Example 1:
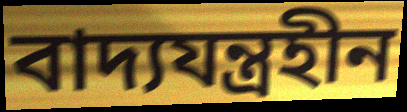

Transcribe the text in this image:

বাদ্যযন্ত্ৰহীন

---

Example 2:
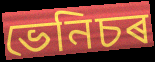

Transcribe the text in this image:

ভেনিচৰ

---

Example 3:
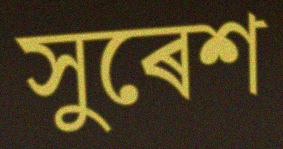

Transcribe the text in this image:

সুৰেশ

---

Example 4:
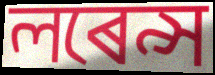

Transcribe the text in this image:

লৰেন্স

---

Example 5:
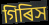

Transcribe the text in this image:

গিৰিস